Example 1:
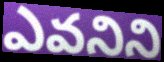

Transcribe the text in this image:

ఎవనిని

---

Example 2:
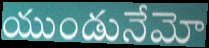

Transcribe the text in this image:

యుండునేమో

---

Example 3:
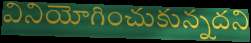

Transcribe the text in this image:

వినియోగించుకున్నదని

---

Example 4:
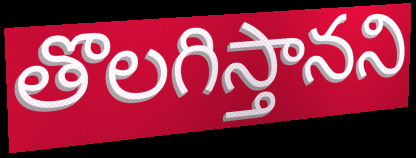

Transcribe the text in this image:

తొలగిస్తానని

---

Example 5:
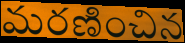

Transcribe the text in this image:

మరణించిన